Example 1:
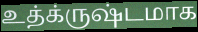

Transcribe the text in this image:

உத்க்ருஷ்டமாக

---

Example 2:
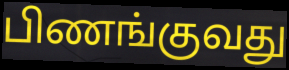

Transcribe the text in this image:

பிணங்குவது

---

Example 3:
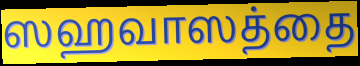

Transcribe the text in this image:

ஸஹவாஸத்தை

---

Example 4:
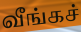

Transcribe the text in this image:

வீங்கச்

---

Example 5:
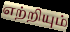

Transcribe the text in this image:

எற்றியும்